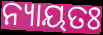
ନ୍ୟାୟତଃ